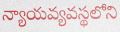
న్యాయవ్యవస్థలోని